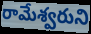
రామేశ్వరుని